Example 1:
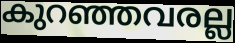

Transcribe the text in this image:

കുറഞ്ഞവരല്ല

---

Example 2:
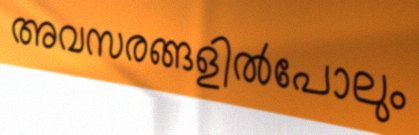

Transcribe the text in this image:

അവസരങ്ങളിൽപോലും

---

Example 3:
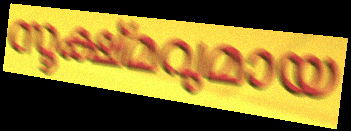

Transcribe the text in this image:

സൂക്ഷ്മവുമായ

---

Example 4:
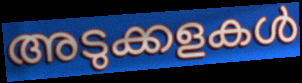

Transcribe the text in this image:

അടുക്കളകൾ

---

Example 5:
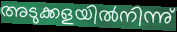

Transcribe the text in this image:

അടുക്കളയിൽനിന്നു്